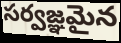
సర్వజ్ఞమైన